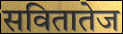
सवितातेज